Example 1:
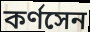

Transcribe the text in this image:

কর্ণসেন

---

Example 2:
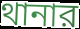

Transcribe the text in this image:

থানার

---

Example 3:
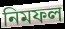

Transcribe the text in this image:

নিমফল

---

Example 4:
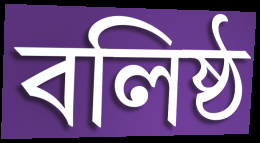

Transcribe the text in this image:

বলিষ্ঠ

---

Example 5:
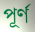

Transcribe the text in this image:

পূর্ণ